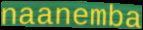
naanemba